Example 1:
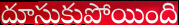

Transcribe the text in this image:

దూసుకుపోయింది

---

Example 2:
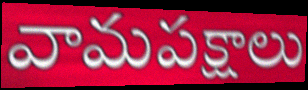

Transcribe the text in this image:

వామపక్షాలు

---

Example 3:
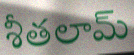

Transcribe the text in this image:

శీతలామ్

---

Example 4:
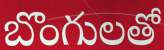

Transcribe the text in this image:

బొంగులతో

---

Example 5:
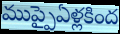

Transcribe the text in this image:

ముప్పైఏళ్లకింద